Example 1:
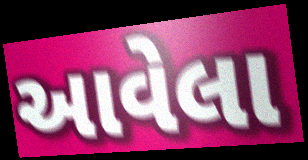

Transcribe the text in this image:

આવેલા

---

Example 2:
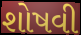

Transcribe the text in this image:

શોષવી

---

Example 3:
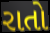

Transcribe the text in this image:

રાતો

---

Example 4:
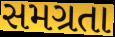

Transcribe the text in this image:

સમગ્રતા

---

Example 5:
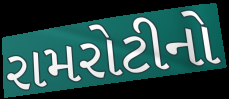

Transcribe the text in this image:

રામરોટીનો